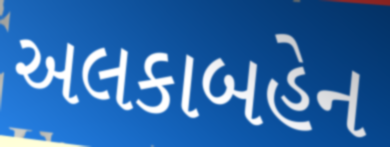
અલકાબહેન